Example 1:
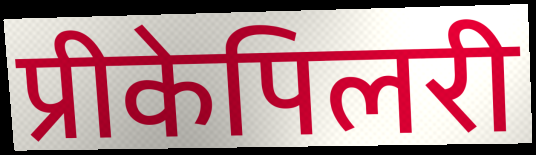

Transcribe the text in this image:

प्रीकेपिलरी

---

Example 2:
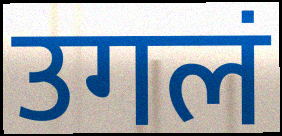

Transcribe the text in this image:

उगलं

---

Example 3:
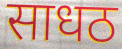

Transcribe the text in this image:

साधठ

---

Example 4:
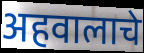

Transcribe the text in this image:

अहवालाचे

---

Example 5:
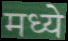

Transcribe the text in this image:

मध्ये